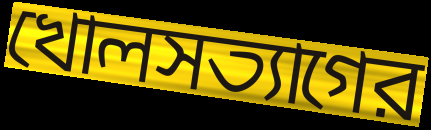
খোলসত্যাগের